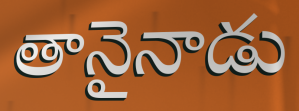
తానైనాడు